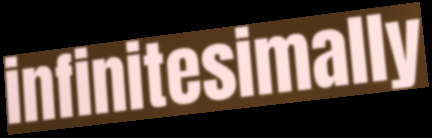
infinitesimally